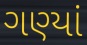
ગણ્યાં